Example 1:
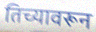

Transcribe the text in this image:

तिच्यावरून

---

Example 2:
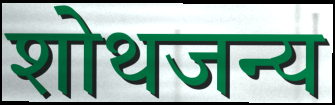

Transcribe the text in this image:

शोथजन्य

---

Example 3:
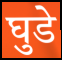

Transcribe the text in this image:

घुडे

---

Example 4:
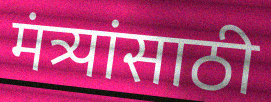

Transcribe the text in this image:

मंत्र्यांसाठी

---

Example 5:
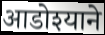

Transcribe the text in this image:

आडोश्याने